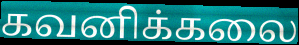
கவனிக்கலை